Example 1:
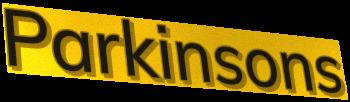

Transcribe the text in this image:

Parkinsons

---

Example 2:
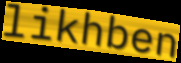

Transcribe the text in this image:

likhben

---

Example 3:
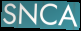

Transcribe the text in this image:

SNCA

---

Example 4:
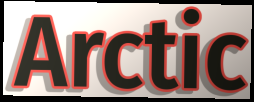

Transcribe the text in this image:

Arctic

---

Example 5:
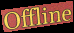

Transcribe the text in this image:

Offline